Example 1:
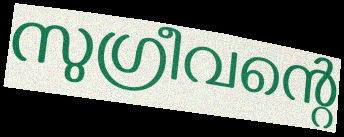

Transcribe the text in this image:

സുഗ്രീവന്റെ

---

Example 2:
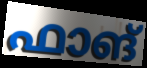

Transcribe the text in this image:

ഫാങ്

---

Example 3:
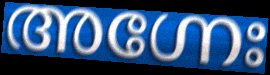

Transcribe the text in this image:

അഗ്നേഃ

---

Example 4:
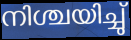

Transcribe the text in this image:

നിശ്ചയിച്ചു്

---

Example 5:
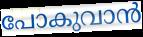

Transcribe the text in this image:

പോകുവാൻ